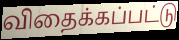
விதைக்கப்பட்டு